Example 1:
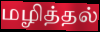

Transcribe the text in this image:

மழித்தல்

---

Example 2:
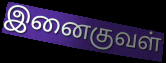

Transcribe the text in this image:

இனைகுவள்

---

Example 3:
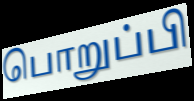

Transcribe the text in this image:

பொறுப்பி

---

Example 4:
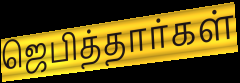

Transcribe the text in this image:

ஜெபித்தார்கள்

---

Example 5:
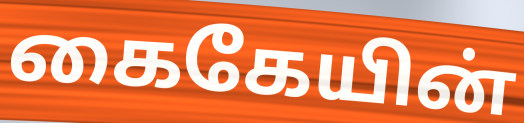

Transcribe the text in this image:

கைகேயின்